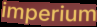
imperium